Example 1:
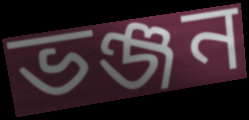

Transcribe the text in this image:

ভঞ্জন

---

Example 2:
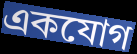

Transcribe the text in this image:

একযোগ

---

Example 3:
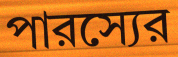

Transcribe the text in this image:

পারস্যের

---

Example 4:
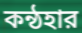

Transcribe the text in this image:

কন্ঠহার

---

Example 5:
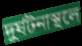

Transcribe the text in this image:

দুর্ঘটনাস্থলে